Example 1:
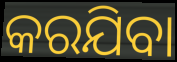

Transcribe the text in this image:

କରଯିବା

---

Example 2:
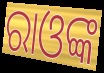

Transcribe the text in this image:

ରାଓଙ୍କ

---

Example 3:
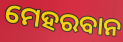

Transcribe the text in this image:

ମେହରବାନ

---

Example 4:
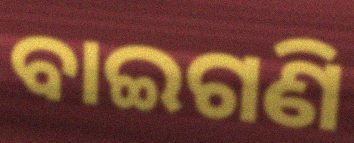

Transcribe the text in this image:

ବାଇଗଣି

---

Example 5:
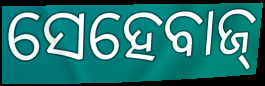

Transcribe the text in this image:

ସେହେବାଜ୍